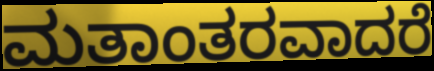
ಮತಾಂತರವಾದರೆ